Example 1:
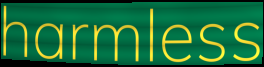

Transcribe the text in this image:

harmless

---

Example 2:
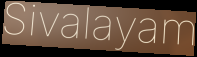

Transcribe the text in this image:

Sivalayam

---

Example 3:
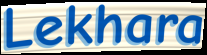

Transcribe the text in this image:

Lekhara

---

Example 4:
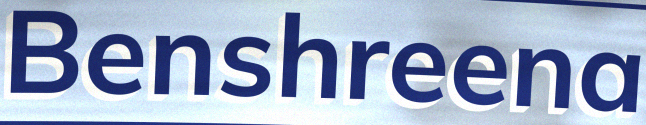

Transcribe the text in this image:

Benshreena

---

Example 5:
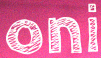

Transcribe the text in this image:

oni